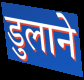
डुलाने